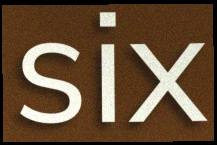
six